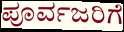
ಪೂರ್ವಜರಿಗೆ